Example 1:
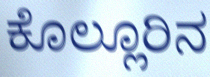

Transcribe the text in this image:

ಕೊಲ್ಲೂರಿನ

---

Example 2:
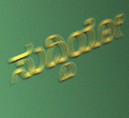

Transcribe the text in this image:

ಸುದ್ದಿಯೋ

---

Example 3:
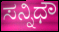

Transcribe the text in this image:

ಸನ್ನಿಧೌ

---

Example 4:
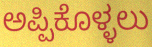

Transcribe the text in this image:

ಅಪ್ಪಿಕೊಳ್ಳಲು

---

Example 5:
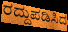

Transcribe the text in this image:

ರದ್ದುಪಡಿಸಿದ